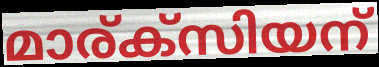
മാര്ക്സിയന്